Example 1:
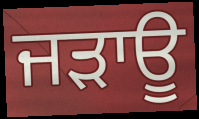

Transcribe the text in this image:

ਜੜਾਊ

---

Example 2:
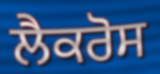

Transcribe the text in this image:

ਲੈਕਰੋਸ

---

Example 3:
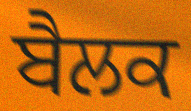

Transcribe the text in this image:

ਬੈਲਕ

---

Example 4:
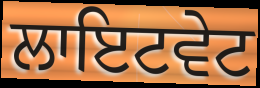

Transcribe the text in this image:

ਲਾਇਟਵੇਟ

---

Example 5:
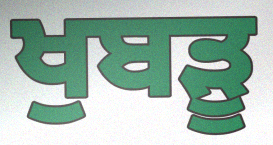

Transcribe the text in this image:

ਖੁਬੜੂ